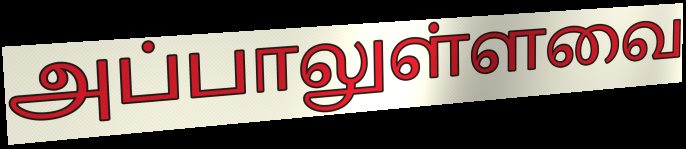
அப்பாலுள்ளவை